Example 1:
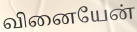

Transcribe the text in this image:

வினையேன்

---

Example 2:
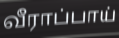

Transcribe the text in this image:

வீராப்பாய்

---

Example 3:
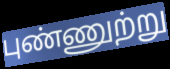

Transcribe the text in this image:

புண்ணுற்று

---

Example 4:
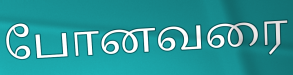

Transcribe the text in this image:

போனவரை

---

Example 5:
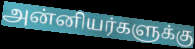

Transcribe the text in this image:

அன்னியர்களுக்கு